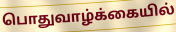
பொதுவாழ்க்கையில்